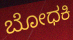
ಬೋಧಕಿ